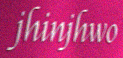
jhinjhwo